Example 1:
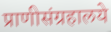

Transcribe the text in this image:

प्राणीसंग्रहालये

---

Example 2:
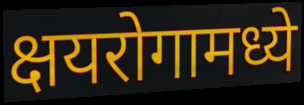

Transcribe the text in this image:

क्षयरोगामध्ये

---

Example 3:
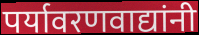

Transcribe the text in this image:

पर्यावरणवाद्यांनी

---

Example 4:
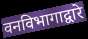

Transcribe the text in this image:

वनविभागाद्वारे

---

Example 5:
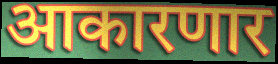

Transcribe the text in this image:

आकारणार